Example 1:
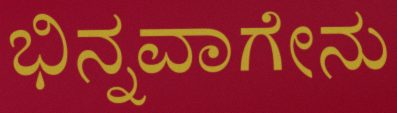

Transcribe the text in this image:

ಭಿನ್ನವಾಗೇನು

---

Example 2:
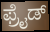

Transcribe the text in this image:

ಫ್ರೈಡ್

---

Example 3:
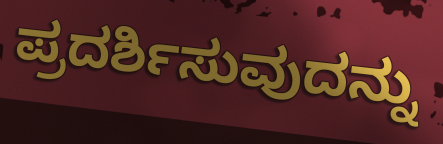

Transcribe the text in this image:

ಪ್ರದರ್ಶಿಸುವುದನ್ನು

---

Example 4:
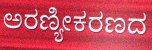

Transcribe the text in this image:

ಅರಣ್ಯೀಕರಣದ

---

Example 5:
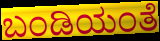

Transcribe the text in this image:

ಬಂಡಿಯಂತೆ